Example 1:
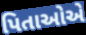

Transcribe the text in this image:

પિતાઓએ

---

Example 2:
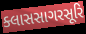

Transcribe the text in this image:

ક્લાસસાગરસૂરિ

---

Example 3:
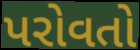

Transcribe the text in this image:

પરોવતો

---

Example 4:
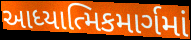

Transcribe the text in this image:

આધ્યાત્મિકમાર્ગમાં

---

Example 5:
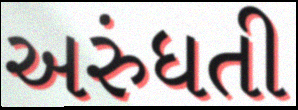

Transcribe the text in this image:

અરુંધતી